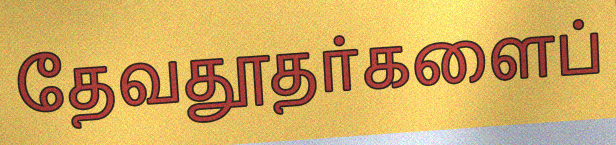
தேவதூதர்களைப்